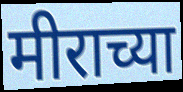
मीराच्या